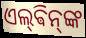
ଏଲ୍‌ଵିନ୍‌ଙ୍କ